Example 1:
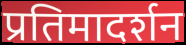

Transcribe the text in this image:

प्रतिमादर्शन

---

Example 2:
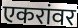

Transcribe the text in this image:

एकरांवर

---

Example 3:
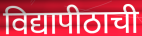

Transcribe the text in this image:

विद्यापीठाची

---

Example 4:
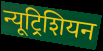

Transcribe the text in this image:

न्यूट्रिशियन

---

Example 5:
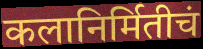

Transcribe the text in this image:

कलानिर्मितीचं